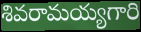
శివరామయ్యగారి